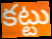
కట్టు